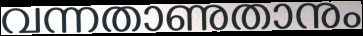
വന്നതാണുതാനും